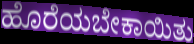
ಹೊರೆಯಬೇಕಾಯಿತು